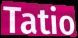
Tatio